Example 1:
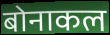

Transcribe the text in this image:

बोनाकल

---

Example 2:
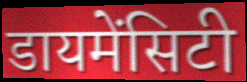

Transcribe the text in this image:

डायमेंसिटी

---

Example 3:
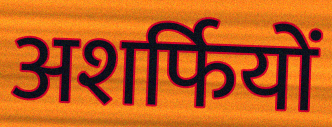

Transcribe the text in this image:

अशर्फियों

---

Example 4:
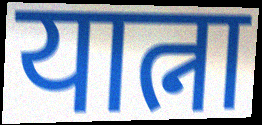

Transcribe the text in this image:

यात्ना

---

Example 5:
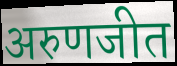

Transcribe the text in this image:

अरुणजीत